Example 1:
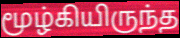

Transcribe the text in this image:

மூழ்கியிருந்த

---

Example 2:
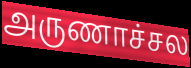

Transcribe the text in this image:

அருணாச்சல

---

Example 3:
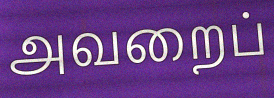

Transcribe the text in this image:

அவறைப்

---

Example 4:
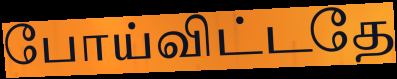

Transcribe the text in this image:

போய்விட்டதே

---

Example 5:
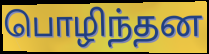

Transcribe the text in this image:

பொழிந்தன